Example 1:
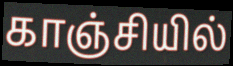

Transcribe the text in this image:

காஞ்சியில்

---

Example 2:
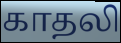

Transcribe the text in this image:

காதலி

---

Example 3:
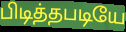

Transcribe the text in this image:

பிடித்தபடியே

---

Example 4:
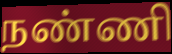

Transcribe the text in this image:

நண்ணி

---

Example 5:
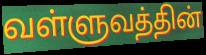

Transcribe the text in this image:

வள்ளுவத்தின்